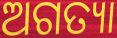
ଅଗତ୍ୟା